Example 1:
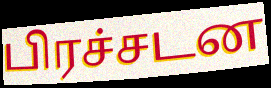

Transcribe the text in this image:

பிரச்சடன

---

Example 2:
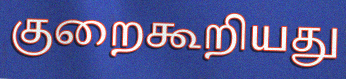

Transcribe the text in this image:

குறைகூறியது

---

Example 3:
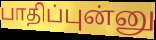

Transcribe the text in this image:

பாதிப்புன்னு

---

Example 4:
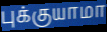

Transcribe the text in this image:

புக்குயாமா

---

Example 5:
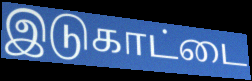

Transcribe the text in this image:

இடுகாட்டை